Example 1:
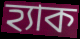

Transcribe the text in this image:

হ্যাক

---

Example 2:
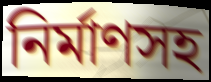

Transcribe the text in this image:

নির্মাণসহ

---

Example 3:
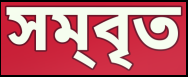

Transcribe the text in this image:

সম্‌বৃত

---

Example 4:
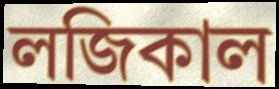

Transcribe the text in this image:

লজিকাল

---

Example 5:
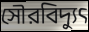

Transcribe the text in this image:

সৌরবিদ্যুৎ